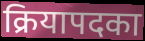
क्रियापदका